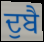
ਦੁਬੈ